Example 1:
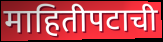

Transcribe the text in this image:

माहितीपटाची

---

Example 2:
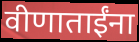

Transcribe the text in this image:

वीणाताईंना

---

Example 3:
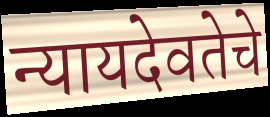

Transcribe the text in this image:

न्यायदेवतेचे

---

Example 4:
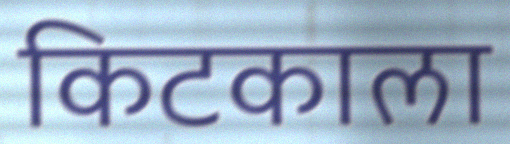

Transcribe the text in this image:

किटकाला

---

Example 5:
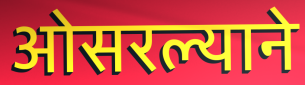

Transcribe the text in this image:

ओसरल्याने